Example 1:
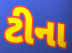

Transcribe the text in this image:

ટીના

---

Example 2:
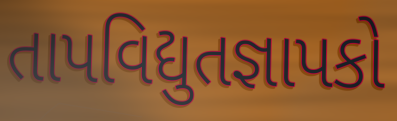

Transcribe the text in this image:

તાપવિદ્યુતજ્ઞાપકો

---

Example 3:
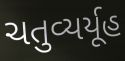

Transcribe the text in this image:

ચતુવ્યર્યૂહ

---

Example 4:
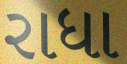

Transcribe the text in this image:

રાધા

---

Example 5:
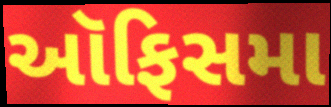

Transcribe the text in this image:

ઑફિસમા